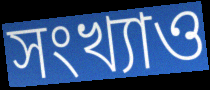
সংখ্যাও